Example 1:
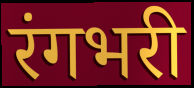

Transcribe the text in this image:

रंगभरी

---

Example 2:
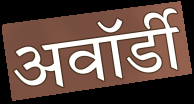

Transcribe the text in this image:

अवॉर्डी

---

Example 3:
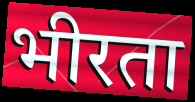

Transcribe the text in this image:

भीरता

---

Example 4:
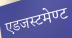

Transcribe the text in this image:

एडजस्टमेण्ट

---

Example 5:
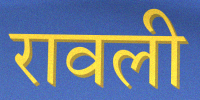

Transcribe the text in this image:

रावली